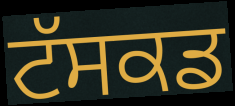
ਟੱਸਕਡ